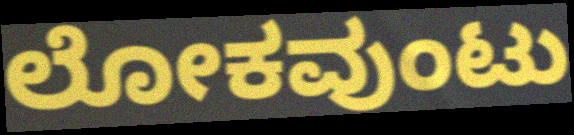
ಲೋಕವುಂಟು